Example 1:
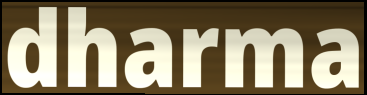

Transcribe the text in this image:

dharma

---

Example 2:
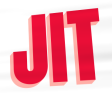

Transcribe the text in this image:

JIT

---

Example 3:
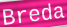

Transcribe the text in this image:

Breda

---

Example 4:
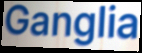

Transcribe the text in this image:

Ganglia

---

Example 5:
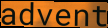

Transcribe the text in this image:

advent